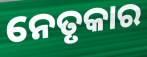
ନେତୃକାର